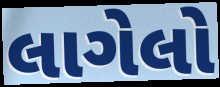
લાગેલો